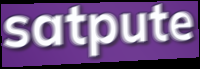
satpute